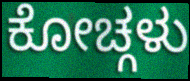
ಕೋಚ್ಗಳು